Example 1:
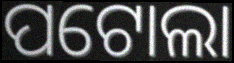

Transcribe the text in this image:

ପଟୋଲା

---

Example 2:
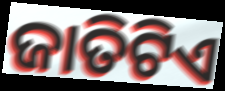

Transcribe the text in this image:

ଜାତିଟିଏ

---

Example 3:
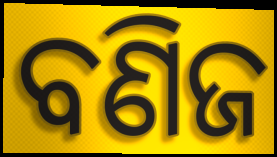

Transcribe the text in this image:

ବଣିଜ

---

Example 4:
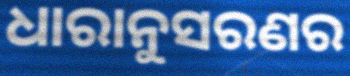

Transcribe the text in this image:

ଧାରାନୁସରଣର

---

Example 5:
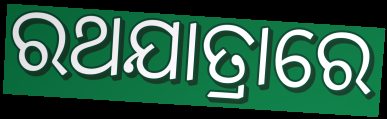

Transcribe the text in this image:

ରଥଯାତ୍ରାରେ